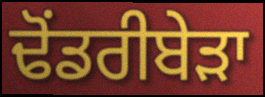
ਢੋਂਡਰੀਬੇੜਾ